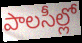
పాలసీల్లో